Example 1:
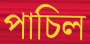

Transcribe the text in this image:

পাচিল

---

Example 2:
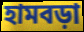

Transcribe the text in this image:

হামবড়া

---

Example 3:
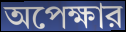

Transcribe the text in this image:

অপেক্ষার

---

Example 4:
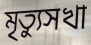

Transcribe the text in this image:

মৃত্যুসখা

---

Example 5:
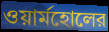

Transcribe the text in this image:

ওয়ার্মহোলের